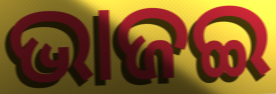
ଭାଜଇ